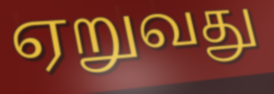
ஏறுவது